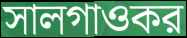
সালগাওকর